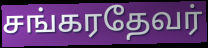
சங்கரதேவர்